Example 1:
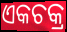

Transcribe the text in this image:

ଏକଚକ୍ର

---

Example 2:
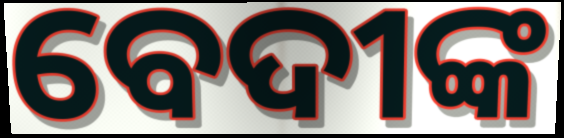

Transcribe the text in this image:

ବେଦୀଙ୍କ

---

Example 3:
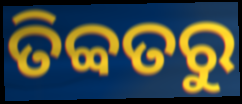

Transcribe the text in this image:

ତିବ୍ବତରୁ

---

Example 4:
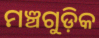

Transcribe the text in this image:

ମଞ୍ଚଗୁଡ଼ିକ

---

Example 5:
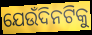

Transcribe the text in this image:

ଯେଉଁଦିନଟିକୁ